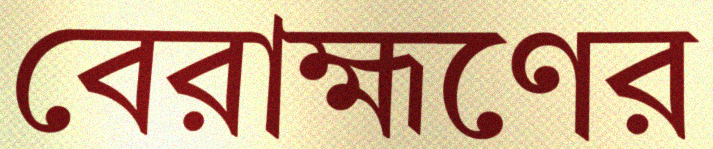
বেরাহ্মণের